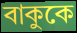
বাকুকে